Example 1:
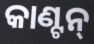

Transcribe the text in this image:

କାଣ୍ଟନ୍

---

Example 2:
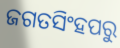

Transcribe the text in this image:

ଜଗତସିଂହପରୁ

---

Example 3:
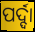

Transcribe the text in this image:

ପର୍ଦ୍ଦା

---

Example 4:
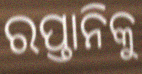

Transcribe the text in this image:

ରପ୍ତାନିକୁ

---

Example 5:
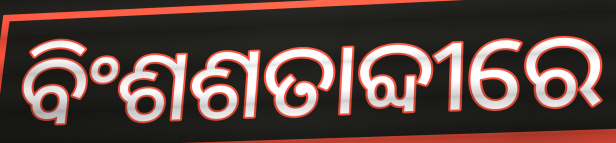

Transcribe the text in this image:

ବିଂଶଶତାବ୍ଦୀରେ